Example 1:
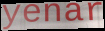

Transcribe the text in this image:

yenar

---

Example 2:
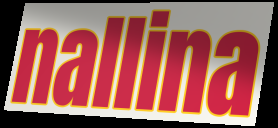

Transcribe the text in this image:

nallina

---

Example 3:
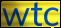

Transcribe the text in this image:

wtc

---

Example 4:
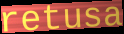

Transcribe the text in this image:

retusa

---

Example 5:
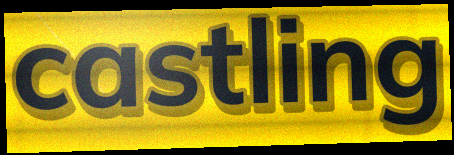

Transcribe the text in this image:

castling